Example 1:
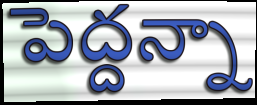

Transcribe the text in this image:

పెద్దన్నా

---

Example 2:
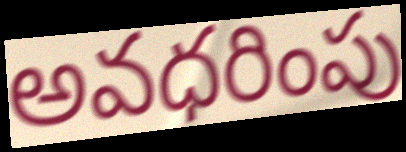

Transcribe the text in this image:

అవధరింపు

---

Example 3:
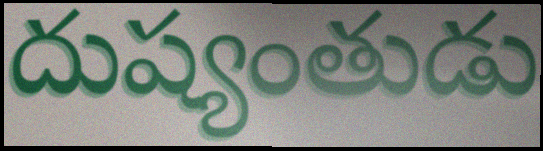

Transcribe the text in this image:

దుష్యంతుడు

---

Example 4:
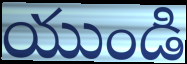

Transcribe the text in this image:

యుండి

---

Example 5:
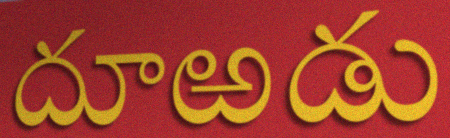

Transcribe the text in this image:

దూఱడు